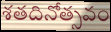
శతదినోత్సవం